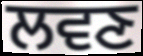
ਲਵਣ